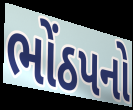
ભોંઠપનો